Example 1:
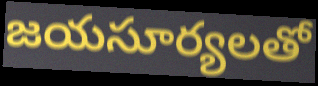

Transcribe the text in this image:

జయసూర్యలతో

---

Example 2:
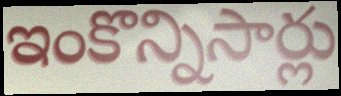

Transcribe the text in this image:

ఇంకొన్నిసార్లు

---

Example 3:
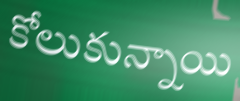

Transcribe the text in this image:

కోలుకున్నాయి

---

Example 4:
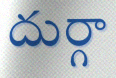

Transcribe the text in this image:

దుర్గా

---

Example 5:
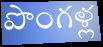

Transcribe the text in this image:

పొంగళ్ల